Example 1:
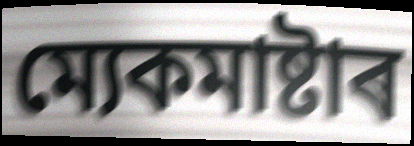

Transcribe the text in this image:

ম্যেকমাষ্টাৰ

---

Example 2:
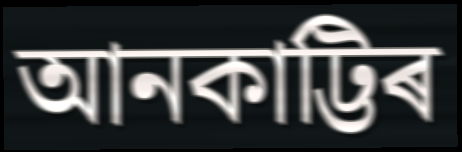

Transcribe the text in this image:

আনকাট্টিৰ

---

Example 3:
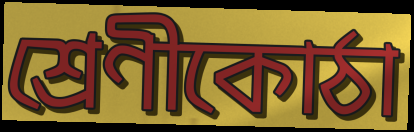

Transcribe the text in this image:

শ্ৰেণীকোঠা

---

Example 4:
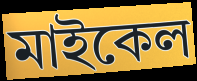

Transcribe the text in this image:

মাইকেল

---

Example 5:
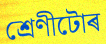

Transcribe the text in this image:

শ্ৰেণীটোৰ